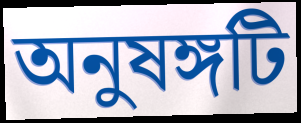
অনুষঙ্গটি